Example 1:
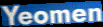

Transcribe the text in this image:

Yeomen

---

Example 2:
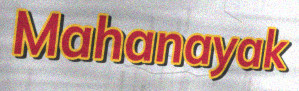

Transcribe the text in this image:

Mahanayak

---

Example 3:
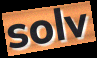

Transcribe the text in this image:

solv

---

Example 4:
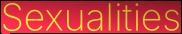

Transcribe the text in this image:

Sexualities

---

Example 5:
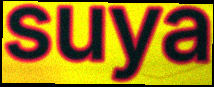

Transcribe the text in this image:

suya